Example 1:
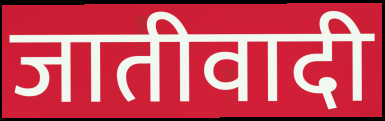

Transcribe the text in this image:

जातीवादी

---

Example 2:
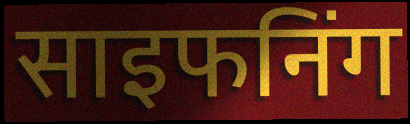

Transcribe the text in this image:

साइफनिंग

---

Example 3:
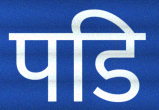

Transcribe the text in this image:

पडि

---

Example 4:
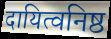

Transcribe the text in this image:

दायित्वनिष्ठ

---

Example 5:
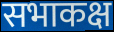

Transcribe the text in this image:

सभाकक्ष